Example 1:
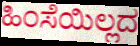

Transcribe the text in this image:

ಹಿಂಸೆಯಿಲ್ಲದ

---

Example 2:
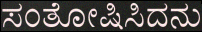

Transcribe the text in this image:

ಸಂತೋಷಿಸಿದನು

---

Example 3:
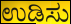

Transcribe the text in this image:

ಉಡಿಸು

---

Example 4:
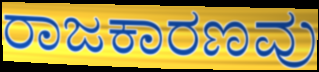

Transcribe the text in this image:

ರಾಜಕಾರಣವು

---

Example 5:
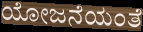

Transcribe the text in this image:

ಯೋಜನೆಯಂತೆ